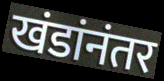
खंडांनंतर